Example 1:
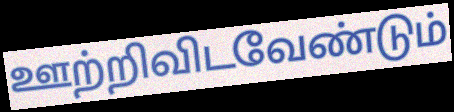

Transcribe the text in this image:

ஊற்றிவிடவேண்டும்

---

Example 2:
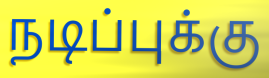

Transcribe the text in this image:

நடிப்புக்கு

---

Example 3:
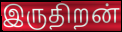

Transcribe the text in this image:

இருதிறன்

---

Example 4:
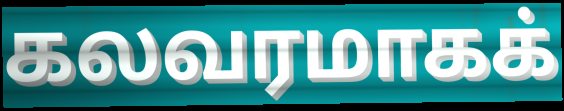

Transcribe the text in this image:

கலவரமாகக்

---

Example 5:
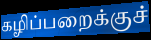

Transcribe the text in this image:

கழிப்பறைக்குச்